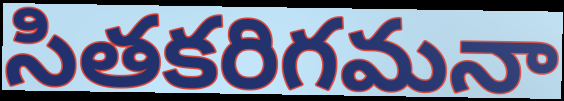
సితకరిగమనా